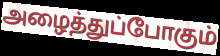
அழைத்துப்போகும்